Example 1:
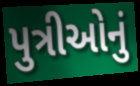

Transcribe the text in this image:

પુત્રીઓનું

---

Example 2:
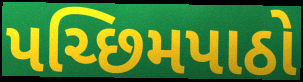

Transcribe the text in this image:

પચ્છિમપાઠો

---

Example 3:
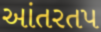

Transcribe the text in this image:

આંતરતપ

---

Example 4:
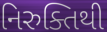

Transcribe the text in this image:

નિરુક્તિથી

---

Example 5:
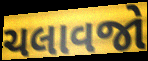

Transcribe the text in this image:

ચલાવજો